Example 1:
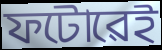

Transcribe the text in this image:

ফটোৱেই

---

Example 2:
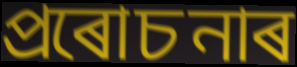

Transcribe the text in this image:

প্ৰৰোচনাৰ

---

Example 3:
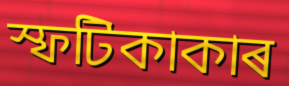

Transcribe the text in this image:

স্ফটিকাকাৰ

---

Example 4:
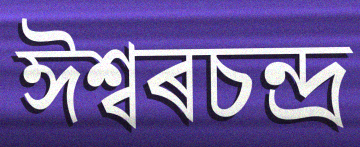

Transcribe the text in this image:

ঈশ্বৰচন্দ্ৰ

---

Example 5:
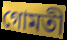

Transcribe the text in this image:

গোমতী